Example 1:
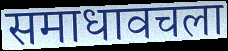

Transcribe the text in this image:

समाधावचला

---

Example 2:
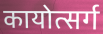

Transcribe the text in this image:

कायोत्सर्ग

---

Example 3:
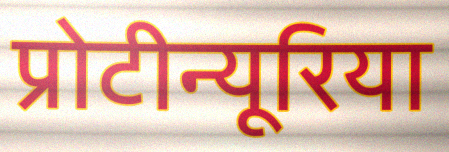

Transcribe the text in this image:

प्रोटीन्यूरिया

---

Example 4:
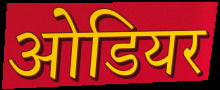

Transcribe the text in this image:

ओडियर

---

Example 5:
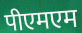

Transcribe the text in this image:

पीएमएम